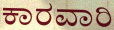
ಕಾರವಾರಿ